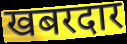
खबरदार